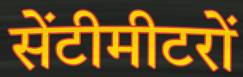
सेंटीमीटरों